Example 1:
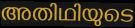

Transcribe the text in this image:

അതിഥിയുടെ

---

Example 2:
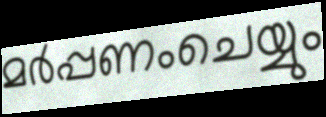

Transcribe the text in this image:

മർപ്പണംചെയ്യും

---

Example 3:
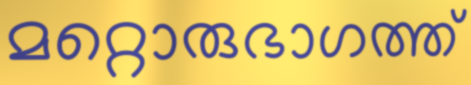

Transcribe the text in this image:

മറ്റൊരുഭാഗത്ത്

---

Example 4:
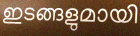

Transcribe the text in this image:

ഇടങ്ങളുമായി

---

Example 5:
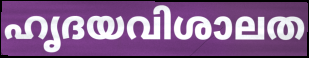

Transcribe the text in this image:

ഹൃദയവിശാലത